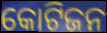
କୋଟିଜନ